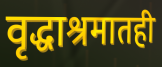
वृद्धाश्रमातही